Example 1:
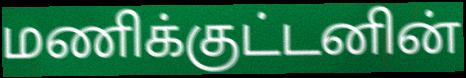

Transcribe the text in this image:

மணிக்குட்டனின்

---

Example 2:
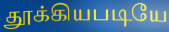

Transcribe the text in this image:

தூக்கியபடியே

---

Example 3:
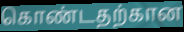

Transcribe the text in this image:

கொண்டதற்கான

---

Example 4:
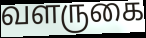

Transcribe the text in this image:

வளருகை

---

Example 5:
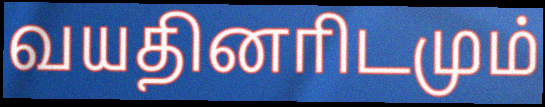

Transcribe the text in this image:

வயதினரிடமும்